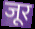
जूर